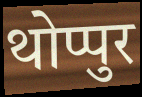
थोप्पुर